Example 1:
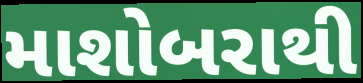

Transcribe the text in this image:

માશોબરાથી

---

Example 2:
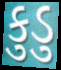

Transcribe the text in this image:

કુડુ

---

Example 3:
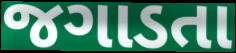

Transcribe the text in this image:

જગાડતા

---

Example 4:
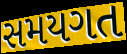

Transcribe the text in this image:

સમયગત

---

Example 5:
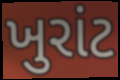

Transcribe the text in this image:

ખુરાંટ